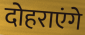
दोहराएंगे